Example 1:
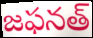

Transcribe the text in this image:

జఫనత్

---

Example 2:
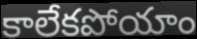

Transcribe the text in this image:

కాలేకపోయాం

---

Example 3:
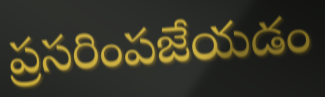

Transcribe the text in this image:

ప్రసరింపజేయడం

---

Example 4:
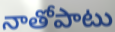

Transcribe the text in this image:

నాతోపాటు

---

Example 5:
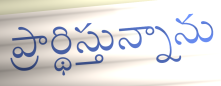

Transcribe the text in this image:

ప్రార్థిస్తున్నాను